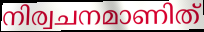
നിര്വചനമാണിത്